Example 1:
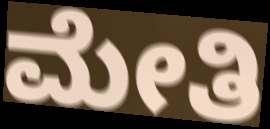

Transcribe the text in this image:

ಮೇತಿ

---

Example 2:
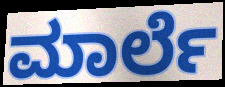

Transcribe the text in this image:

ಮಾರ್ಲೆ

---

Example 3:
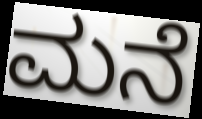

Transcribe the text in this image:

ಮನೆ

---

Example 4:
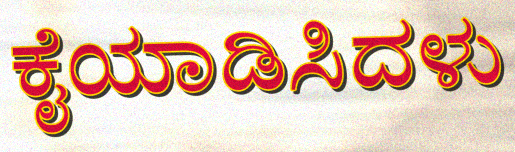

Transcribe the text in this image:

ಕೈಯಾಡಿಸಿದಳು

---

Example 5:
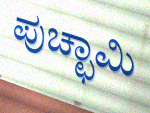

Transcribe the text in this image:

ಪುಚ್ಛಾಮಿ